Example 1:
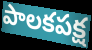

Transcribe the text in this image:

పాలకపక్ష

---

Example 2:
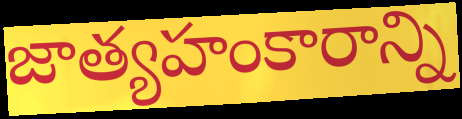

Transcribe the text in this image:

జాత్యహంకారాన్ని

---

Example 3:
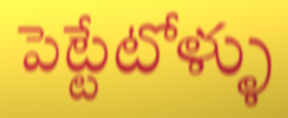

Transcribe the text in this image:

పెట్టేటోళ్ళు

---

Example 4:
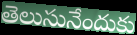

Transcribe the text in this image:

తెలుసునేందుకు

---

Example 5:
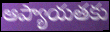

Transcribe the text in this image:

ఆప్యాయతకు